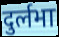
दुर्लभा